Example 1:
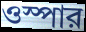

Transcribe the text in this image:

ওস্পার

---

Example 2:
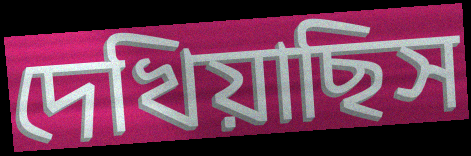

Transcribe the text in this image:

দেখিয়াছিস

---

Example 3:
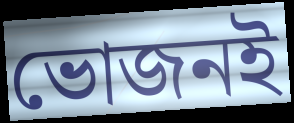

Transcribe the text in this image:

ভোজনই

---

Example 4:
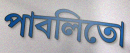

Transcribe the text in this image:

পাবলিতো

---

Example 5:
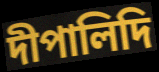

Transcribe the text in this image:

দীপালিদি